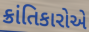
ક્રાંતિકારોએ